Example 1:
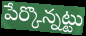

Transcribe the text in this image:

పేర్కొన్నట్టు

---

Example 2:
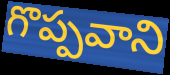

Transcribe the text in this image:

గొప్పవాని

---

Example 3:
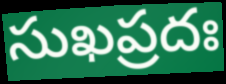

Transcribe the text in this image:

సుఖప్రదః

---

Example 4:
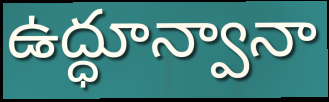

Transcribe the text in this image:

ఉద్ధూన్వానా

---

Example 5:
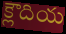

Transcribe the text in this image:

క్లౌదియ